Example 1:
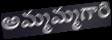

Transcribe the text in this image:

అమ్మమ్మగారి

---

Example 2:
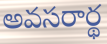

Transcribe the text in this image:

అవసరార్థ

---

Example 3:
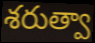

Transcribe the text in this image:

శరుత్వా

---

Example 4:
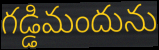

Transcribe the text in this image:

గడ్డిమందును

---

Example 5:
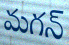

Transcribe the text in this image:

మగన్